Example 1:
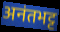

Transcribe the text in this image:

अनंतभट्ट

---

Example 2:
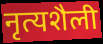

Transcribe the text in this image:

नृत्यशैली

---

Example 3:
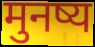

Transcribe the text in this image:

मुनष्य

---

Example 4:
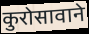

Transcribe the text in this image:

कुरोसावाने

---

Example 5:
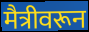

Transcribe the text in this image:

मैत्रीवरून